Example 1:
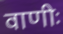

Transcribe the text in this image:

वाणीः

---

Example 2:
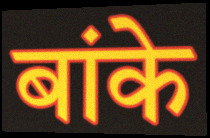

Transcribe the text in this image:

बांके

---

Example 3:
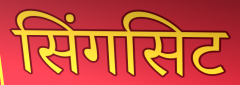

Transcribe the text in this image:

सिंगसिट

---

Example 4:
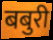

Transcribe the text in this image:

बबुरी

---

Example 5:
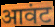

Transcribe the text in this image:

आवंट